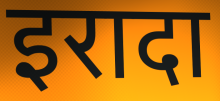
इरादा